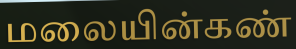
மலையின்கண்